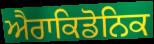
ਐਰਾਕਿਡੋਨਿਕ